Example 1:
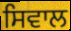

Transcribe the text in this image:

ਸਿਵਾਲ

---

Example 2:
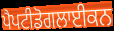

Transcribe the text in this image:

ਪੈਪਟੀਡੋਗਲਾਈਕਨ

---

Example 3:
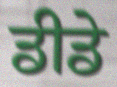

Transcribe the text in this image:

ਡੀਡੇ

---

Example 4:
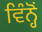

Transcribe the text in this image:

ਵਿੰਨ੍ਹੋਂ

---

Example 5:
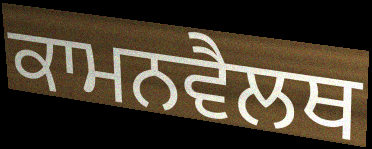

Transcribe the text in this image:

ਕਾਮਨਵੈਲਥ